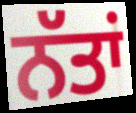
ਨੱਤਾਂ